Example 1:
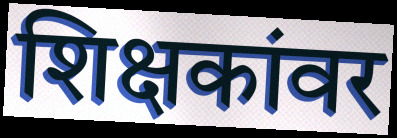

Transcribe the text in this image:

शिक्षकांवर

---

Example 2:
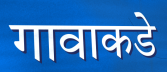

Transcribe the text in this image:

गावाकडे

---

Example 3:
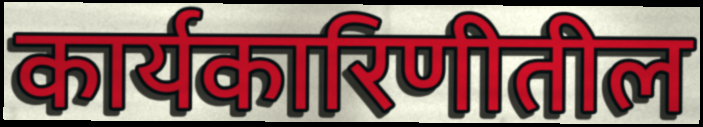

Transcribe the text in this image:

कार्यकारिणीतील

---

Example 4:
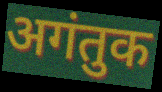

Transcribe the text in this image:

अगंतुक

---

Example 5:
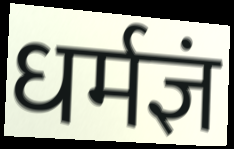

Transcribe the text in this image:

धर्मज्ञं